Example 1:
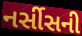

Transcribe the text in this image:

નર્સીસની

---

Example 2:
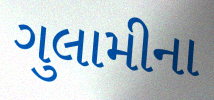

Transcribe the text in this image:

ગુલામીના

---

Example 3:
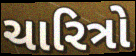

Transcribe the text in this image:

ચારિત્રો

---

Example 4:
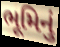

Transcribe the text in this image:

ભૂમિનું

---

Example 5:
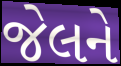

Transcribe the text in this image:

જેલને